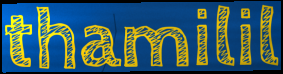
thamilil